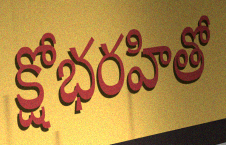
క్షోభరహితో